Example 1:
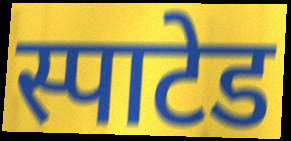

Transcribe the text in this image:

स्पाटेड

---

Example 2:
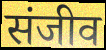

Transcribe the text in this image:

संजीव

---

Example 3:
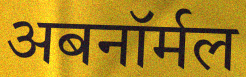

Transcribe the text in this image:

अबनॉर्मल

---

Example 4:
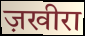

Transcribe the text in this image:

ज़खीरा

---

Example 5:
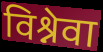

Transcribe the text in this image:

विश्नेवा